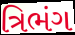
ત્રિભંગ